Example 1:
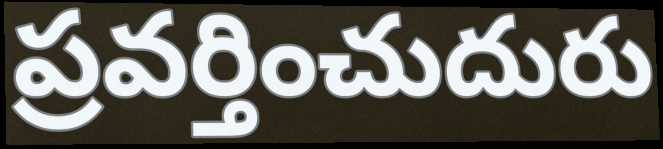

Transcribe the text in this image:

ప్రవర్తించుదురు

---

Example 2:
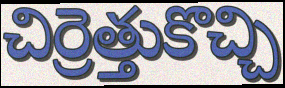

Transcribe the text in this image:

చిర్రెత్తుకొచ్చి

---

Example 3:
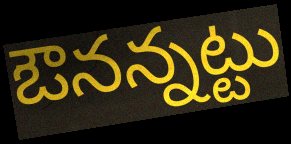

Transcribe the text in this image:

ఔనన్నట్టు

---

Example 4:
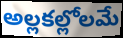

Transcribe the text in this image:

అల్లకల్లోలమే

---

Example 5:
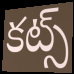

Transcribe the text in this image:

కట్స్